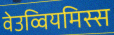
वेउव्वियमिस्स